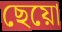
ছেয়ো